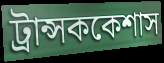
ট্রান্সককেশাস